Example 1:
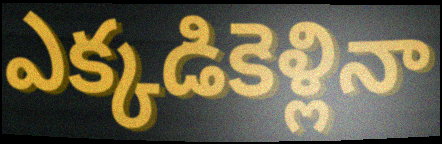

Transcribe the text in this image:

ఎక్కడికెళ్లినా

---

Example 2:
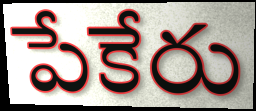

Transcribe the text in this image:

పేకేరు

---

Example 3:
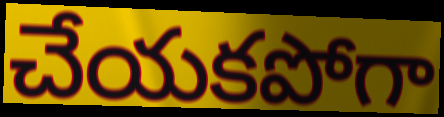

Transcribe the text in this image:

చేయకపోగా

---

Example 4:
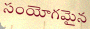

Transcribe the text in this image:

సంయోగమైన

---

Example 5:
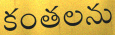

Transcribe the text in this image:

కంతలను